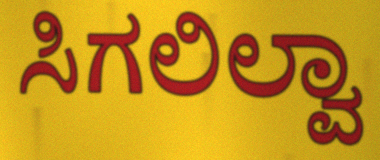
ಸಿಗಲಿಲ್ವಾ